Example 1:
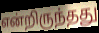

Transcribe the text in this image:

என்றிருந்தது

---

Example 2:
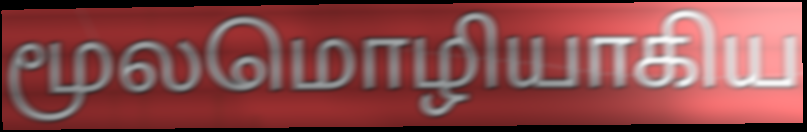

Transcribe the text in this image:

மூலமொழியாகிய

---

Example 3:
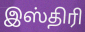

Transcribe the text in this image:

இஸ்திரி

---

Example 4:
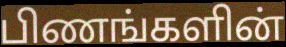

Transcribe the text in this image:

பிணங்களின்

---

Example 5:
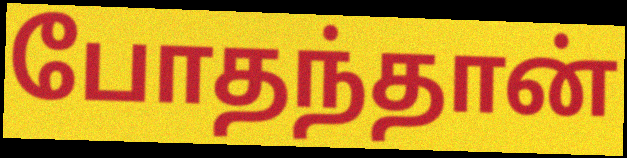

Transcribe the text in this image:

போதந்தான்